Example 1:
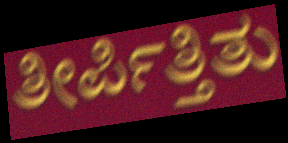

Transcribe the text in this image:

ತೀರ್ಪಿತ್ತಿತು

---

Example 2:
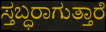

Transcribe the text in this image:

ಸ್ತಬ್ಧರಾಗುತ್ತಾರೆ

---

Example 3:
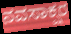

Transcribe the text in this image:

ನವಸಾಕ್ಷರ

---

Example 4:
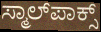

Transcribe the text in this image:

ಸ್ಮಾಲ್‌ಪಾಕ್ಸ್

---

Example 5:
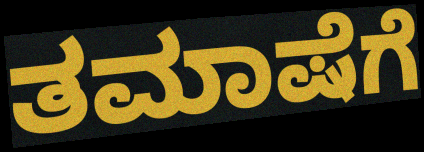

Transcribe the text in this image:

ತಮಾಷೆಗೆ